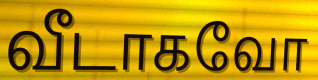
வீடாகவோ